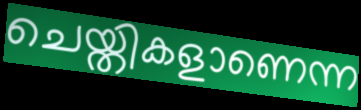
ചെയ്തികളാണെന്ന